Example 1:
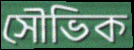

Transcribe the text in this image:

সৌভিক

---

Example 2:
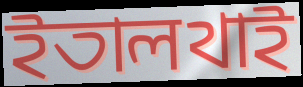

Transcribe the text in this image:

ইতালথাই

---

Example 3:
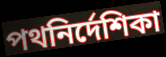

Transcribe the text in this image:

পথনির্দেশিকা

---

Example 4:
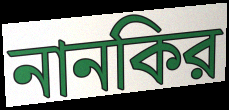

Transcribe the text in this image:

নানকির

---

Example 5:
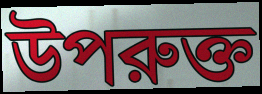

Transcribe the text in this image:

উপরুক্ত